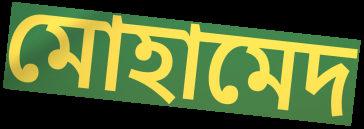
মোহামেদ